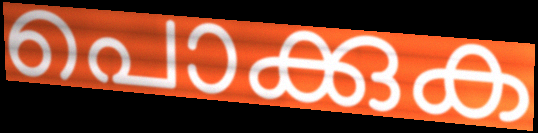
പൊക്കുക